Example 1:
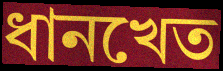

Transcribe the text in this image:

ধানখেত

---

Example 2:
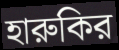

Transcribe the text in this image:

হারুকির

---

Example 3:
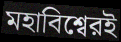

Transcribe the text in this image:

মহাবিশ্বেরই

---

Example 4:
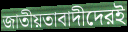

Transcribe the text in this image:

জাতীয়তাবাদীদেরই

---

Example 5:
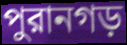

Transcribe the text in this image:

পুরানগড়